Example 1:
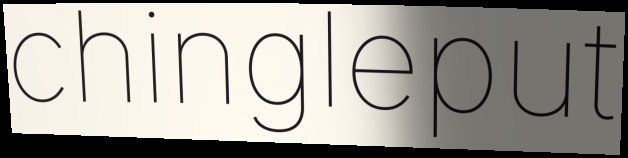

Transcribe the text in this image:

chingleput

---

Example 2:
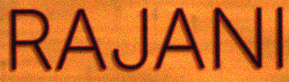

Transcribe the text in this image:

RAJANI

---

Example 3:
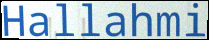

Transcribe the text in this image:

Hallahmi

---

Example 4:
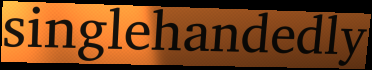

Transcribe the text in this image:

singlehandedly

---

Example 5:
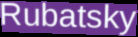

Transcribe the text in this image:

Rubatsky